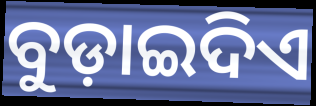
ବୁଡ଼ାଇଦିଏ